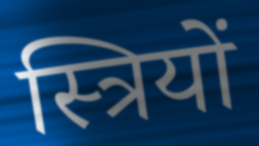
स्त्रियों